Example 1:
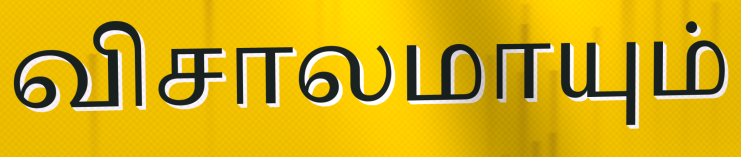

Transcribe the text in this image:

விசாலமாயும்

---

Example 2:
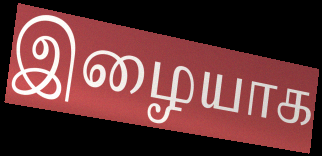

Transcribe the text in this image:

இழையாக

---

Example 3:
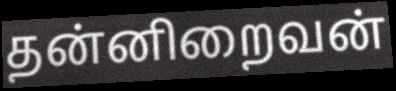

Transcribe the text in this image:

தன்னிறைவன்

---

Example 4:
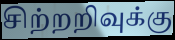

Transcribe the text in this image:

சிற்றறிவுக்கு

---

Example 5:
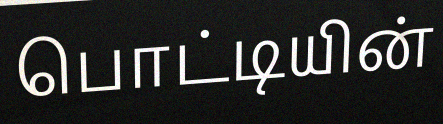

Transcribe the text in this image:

பொட்டியின்